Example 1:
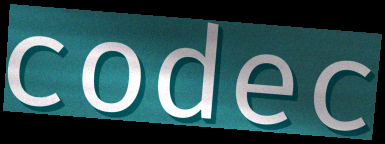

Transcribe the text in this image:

codec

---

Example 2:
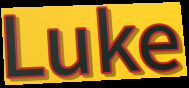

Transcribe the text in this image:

Luke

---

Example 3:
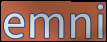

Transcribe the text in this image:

emni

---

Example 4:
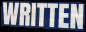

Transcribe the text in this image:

WRITTEN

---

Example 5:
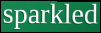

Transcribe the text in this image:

sparkled